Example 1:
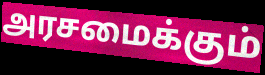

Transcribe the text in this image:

அரசமைக்கும்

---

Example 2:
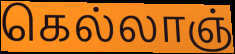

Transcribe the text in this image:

கெல்லாஞ்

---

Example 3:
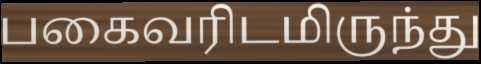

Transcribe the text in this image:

பகைவரிடமிருந்து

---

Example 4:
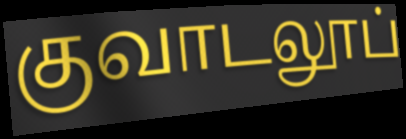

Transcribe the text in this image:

குவாடலூப்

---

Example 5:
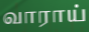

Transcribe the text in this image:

வாராய்